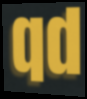
qd